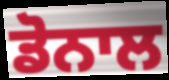
ਡੋਨਾਲ